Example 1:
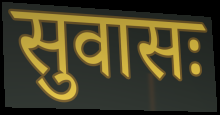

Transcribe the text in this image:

सुवासः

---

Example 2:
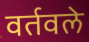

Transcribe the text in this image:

वर्तवले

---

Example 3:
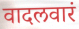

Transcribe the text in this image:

वादलवारं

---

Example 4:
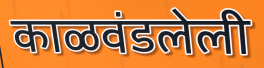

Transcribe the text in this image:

काळवंडलेली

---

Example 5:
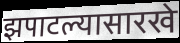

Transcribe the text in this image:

झपाटल्यासारखे